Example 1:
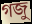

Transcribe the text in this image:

গজু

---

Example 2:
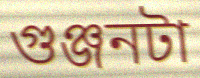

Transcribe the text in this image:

গুঞ্জনটা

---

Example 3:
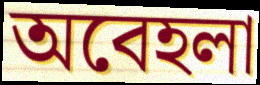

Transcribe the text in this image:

অবেহলা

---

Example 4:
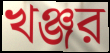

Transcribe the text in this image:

খঞ্জর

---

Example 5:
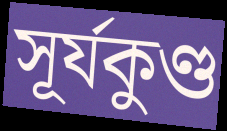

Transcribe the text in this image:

সূর্যকুণ্ড